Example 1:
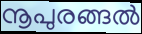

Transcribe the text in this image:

നൂപുരങ്ങൽ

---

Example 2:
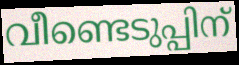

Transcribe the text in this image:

വീണ്ടെടുപ്പിന്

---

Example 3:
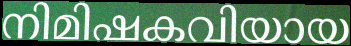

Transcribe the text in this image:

നിമിഷകവിയായ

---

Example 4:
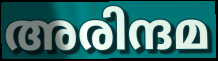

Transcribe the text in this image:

അരിന്ദമ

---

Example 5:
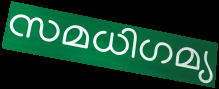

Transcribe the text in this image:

സമധിഗമ്യ